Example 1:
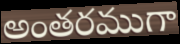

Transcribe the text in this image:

అంతరముగా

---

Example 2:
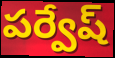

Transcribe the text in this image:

పర్వేష్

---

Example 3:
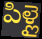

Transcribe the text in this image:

పిళ్లై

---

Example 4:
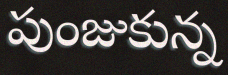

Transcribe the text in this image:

పుంజుకున్న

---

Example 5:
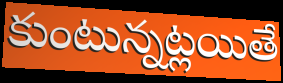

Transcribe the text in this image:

కుంటున్నట్లయితే